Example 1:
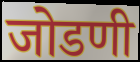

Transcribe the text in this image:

जोडणी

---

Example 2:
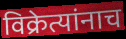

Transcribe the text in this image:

विक्रेत्यांनाच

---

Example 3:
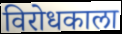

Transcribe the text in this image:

विरोधकाला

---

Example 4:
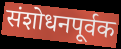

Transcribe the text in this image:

संशोधनपूर्वक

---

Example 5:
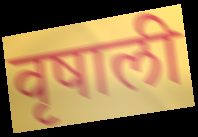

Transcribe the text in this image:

वृषाली